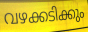
വഴക്കടിക്കും